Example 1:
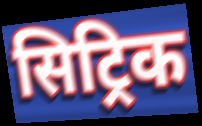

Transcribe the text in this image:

सिट्रिक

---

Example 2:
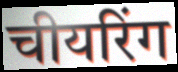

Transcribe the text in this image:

चीयरिंग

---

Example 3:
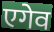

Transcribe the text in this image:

एगेव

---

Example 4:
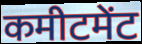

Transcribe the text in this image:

कमीटमेंट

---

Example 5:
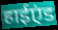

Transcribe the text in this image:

हाईएंड